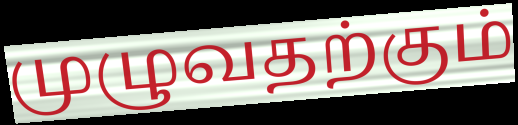
முழுவதற்கும்